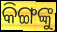
କିଙ୍ଗଙ୍କୁ